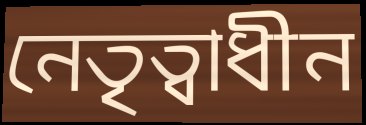
নেতৃত্বাধীন